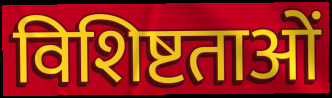
विशिष्टताओं